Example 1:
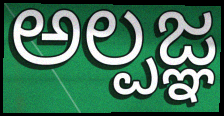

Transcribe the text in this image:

ಅಲ್ಪಜ್ಞ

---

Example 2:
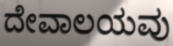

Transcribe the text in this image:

ದೇವಾಲಯವು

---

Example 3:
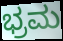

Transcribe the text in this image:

ಭ್ರಮ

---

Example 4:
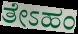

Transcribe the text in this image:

ತೇಽಹಂ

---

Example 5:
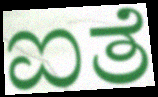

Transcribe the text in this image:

ಐತೆ